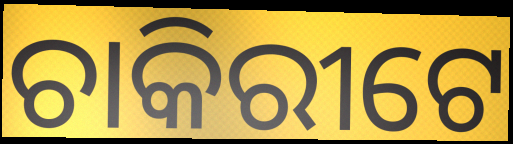
ଚାକିରୀଟେ